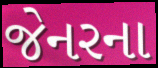
જેનરના